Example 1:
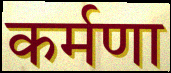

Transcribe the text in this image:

कर्मणा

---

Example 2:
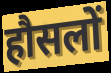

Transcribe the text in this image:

हौसलों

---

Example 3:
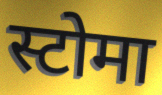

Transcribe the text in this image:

स्टोमा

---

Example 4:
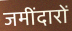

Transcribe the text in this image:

जमींदारों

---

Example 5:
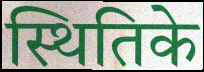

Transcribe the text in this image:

स्थितिके